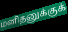
மனிதனுக்குக்